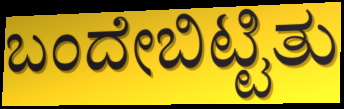
ಬಂದೇಬಿಟ್ಟಿತು